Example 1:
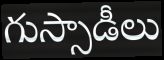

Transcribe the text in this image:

గుస్సాడీలు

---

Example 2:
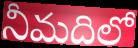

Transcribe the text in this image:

నీమదిలో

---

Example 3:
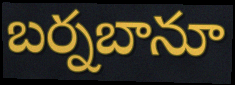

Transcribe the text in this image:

బర్నబానూ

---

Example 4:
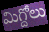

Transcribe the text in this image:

మిగ్దోలు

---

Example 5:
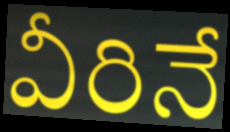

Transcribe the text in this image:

వీరినే